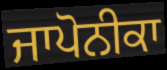
ਜਾਪੋਨੀਕਾ